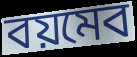
বয়মেব